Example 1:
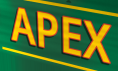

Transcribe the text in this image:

APEX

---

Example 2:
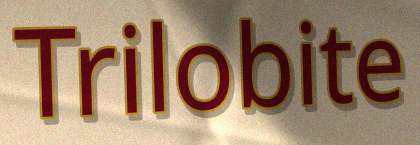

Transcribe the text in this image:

Trilobite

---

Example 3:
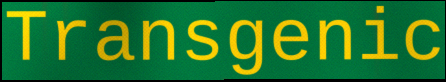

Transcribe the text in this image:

Transgenic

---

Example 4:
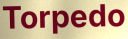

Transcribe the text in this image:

Torpedo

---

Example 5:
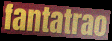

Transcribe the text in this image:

fantatrao